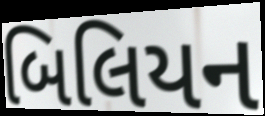
બિલિયન